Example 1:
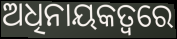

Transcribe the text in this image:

ଅଧିନାୟକତ୍ବରେ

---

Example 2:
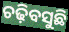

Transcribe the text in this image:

ଚଢ଼ିବସୁଛି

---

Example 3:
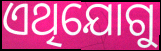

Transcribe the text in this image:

ଏଥିଯୋଗୁ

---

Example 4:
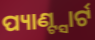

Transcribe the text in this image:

ପ୍ୟାଣ୍ଟ୍ସାର୍ଟ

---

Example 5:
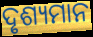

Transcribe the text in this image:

ଦୃଶ୍ୟମାନ